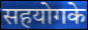
सहयोगके